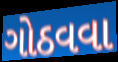
ગોઠવવા